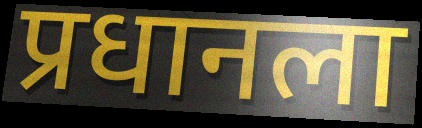
प्रधानला